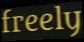
freely